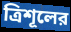
ত্রিশূলের